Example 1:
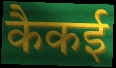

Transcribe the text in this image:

कैकई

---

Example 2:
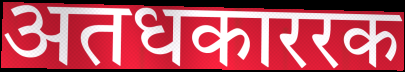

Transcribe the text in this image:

अतधकाररक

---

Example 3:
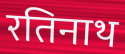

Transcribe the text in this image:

रतिनाथ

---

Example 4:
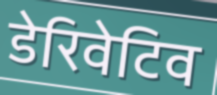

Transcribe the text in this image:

डेरिवेटिव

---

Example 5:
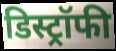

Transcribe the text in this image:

डिस्ट्रॉफी